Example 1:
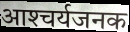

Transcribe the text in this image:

आश्‍चर्यजनक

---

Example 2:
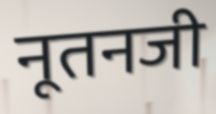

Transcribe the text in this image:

नूतनजी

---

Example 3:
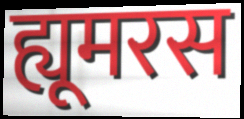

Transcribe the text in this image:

ह्यूमरस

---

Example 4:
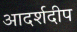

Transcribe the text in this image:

आदर्शदीप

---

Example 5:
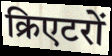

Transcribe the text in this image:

क्रिएटरों